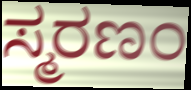
ಸ್ಮರಣಂ